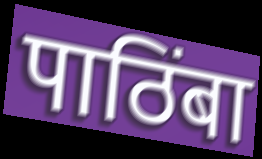
पाठिंबा